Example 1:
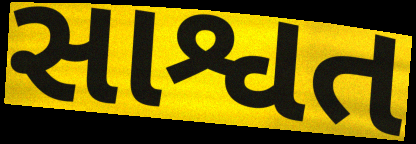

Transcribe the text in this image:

સાશ્વત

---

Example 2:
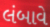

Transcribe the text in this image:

લંબાવે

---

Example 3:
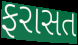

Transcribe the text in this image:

ફરાસત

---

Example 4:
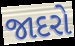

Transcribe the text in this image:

જાદરો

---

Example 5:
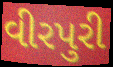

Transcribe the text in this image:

વીરપુરી